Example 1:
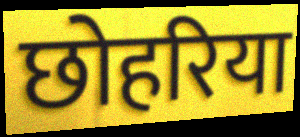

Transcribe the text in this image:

छोहरिया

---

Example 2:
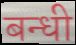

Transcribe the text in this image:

बन्धी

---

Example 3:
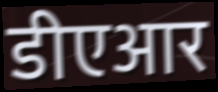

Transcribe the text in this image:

डीएआर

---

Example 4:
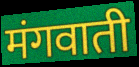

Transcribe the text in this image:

मंगवाती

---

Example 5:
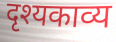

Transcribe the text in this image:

दृश्यकाव्य